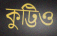
কুট্টিও